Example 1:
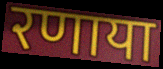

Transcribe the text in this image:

रणाया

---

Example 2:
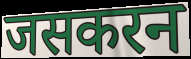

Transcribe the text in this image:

जसकरन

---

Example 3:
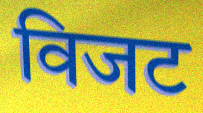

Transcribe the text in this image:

विजट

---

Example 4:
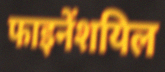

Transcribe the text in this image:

फाइनेंशयिल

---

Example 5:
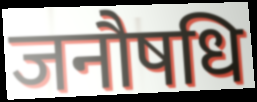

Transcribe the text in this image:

जनौषधि